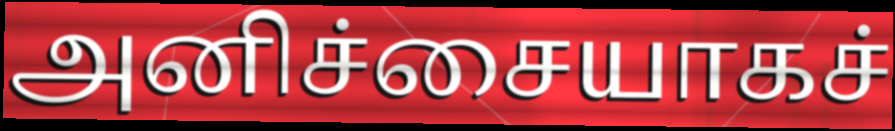
அனிச்சையாகச்